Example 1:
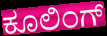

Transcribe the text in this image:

ಕೂಲಿಂಗ್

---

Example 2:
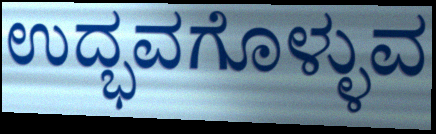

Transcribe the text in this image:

ಉದ್ಭವಗೊಳ್ಳುವ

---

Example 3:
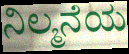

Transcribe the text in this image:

ನಿಲ್ಮನೆಯ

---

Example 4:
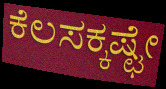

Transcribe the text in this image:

ಕೆಲಸಕ್ಕಷ್ಟೇ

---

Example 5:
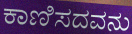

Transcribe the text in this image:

ಕಾಣಿಸದವನು